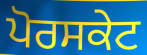
ਪੋਰਸਕੇਟ